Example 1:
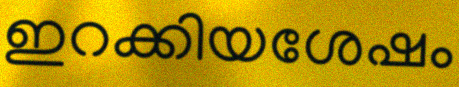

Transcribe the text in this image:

ഇറക്കിയശേഷം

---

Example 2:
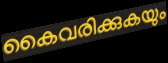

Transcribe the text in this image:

കൈവരിക്കുകയും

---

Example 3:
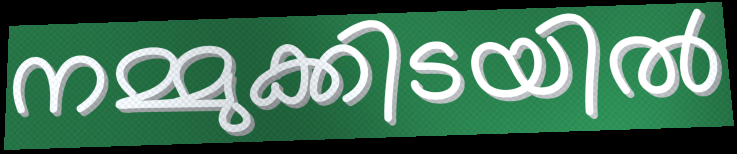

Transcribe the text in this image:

നമ്മുക്കിടയിൽ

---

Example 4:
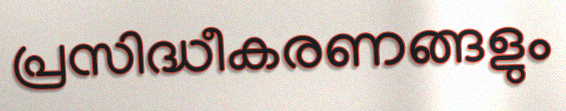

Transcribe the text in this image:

പ്രസിദ്ധീകരണങ്ങളും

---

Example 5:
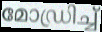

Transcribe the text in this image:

മോഡ്രിച്ച്